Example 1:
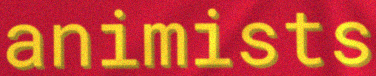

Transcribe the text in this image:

animists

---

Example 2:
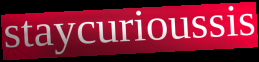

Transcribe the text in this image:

staycurioussis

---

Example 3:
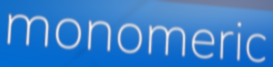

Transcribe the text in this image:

monomeric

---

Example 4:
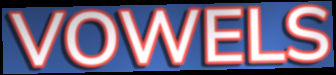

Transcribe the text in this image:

VOWELS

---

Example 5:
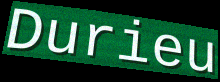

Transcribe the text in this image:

Durieu